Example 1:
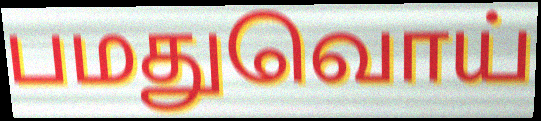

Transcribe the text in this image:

பமதுவொய்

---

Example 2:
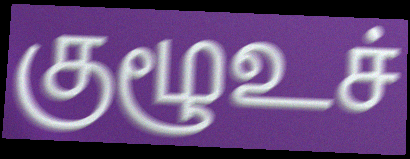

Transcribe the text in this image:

குழூஉச்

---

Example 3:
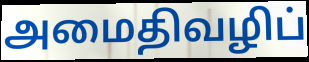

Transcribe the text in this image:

அமைதிவழிப்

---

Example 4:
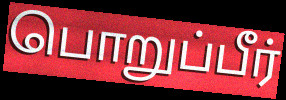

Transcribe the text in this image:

பொறுப்பீர்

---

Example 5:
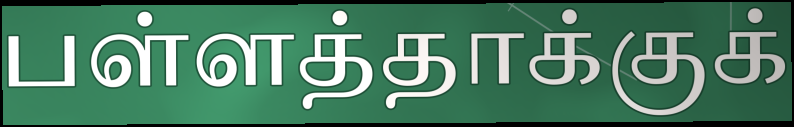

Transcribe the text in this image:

பள்ளத்தாக்குக்